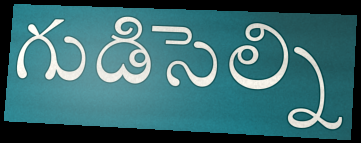
గుడిసెల్ని